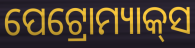
ପେଟ୍ରୋମ୍ୟାକ୍‌ସ